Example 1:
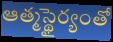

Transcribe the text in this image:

ఆత్మస్థైర్యంతో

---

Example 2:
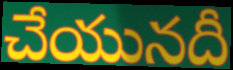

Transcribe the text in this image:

చేయునదీ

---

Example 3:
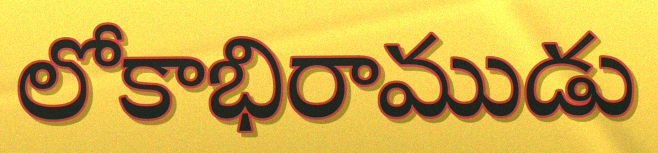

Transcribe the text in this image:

లోకాభిరాముడు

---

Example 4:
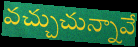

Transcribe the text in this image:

వచ్చుచున్నావే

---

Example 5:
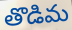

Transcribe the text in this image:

తొడిమ